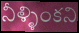
నీళ్ళింకని